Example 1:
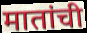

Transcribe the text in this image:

मातांची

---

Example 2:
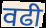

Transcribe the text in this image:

वढी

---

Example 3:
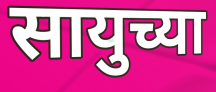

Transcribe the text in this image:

सायुच्या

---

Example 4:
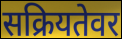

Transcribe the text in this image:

सक्रियतेवर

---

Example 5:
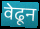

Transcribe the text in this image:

वेढून